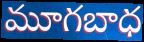
మూగబాధ